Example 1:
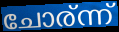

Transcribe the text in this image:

ചോര്ന്ന്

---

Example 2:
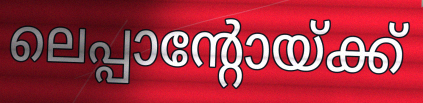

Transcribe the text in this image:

ലെപ്പാന്റോയ്ക്ക്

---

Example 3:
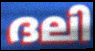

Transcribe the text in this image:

ദലി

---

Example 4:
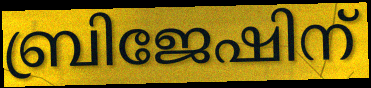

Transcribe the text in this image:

ബ്രിജേഷിന്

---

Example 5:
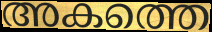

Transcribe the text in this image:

അകത്തെ